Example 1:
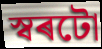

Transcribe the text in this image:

স্বৰটো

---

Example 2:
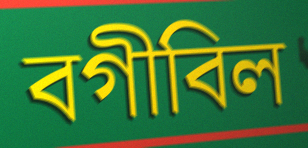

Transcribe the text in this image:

বগীবিল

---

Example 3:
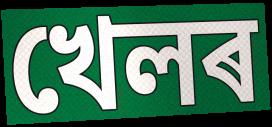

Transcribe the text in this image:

খেলৰ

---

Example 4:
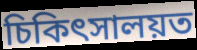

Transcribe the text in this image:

চিকিৎসালয়ত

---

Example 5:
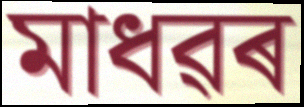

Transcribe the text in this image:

মাধৱৰ